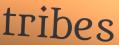
tribes